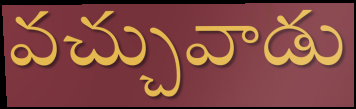
వచ్చువాడు